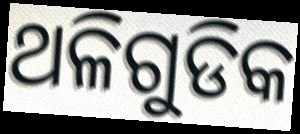
ଥଳିଗୁଡିକ